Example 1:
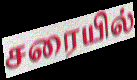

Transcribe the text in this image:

சரையில்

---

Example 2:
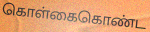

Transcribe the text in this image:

கொள்கைகொண்ட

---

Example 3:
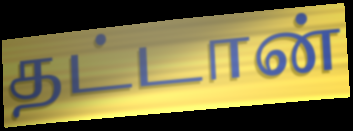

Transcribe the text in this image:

தட்டான்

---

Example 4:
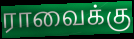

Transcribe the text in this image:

ராவைக்கு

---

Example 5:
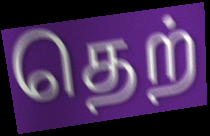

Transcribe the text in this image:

தெற்